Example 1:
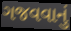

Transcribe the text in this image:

ગજવવાનું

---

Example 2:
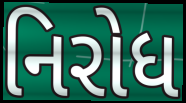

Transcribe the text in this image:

નિરોધ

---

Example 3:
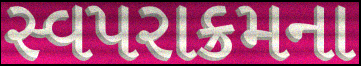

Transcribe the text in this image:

સ્વપરાક્રમના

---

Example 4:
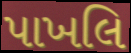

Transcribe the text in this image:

પાખલિ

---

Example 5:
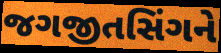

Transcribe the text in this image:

જગજીતસિંગને